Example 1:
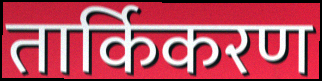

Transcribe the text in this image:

तार्किकरण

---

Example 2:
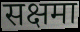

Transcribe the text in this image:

सक्षमा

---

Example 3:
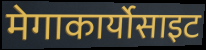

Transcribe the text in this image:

मेगाकार्योसाइट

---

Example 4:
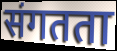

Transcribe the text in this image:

संगतता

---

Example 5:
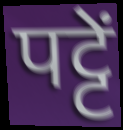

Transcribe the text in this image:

पट्टें